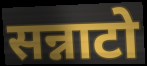
सन्नाटो